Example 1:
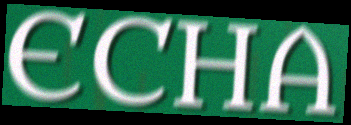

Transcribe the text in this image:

ECHA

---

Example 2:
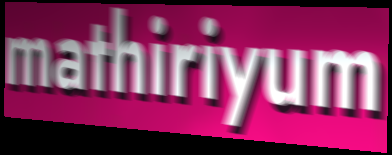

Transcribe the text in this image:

mathiriyum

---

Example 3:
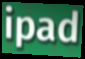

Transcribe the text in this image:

ipad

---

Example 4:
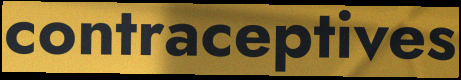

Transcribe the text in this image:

contraceptives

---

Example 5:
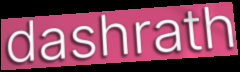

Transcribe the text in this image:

dashrath